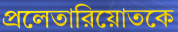
প্রলেতারিয়োতকে